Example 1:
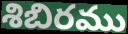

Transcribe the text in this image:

శిబిరము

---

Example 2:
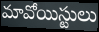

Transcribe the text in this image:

మావోయిస్టులు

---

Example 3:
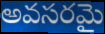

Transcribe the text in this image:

అవసరమై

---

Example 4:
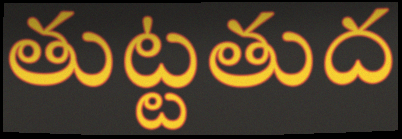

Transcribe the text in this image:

తుట్టతుద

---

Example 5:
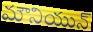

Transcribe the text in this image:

మౌనియున్